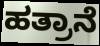
ಹತ್ರಾನೆ